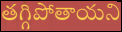
తగ్గిపోతాయని